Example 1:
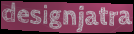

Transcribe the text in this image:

designjatra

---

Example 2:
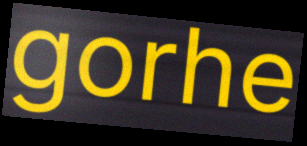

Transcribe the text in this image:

gorhe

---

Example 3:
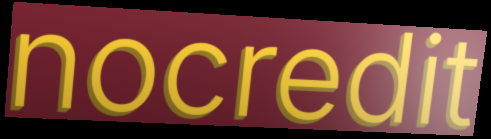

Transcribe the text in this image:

nocredit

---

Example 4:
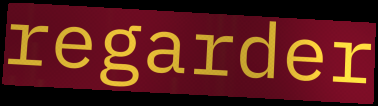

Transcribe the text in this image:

regarder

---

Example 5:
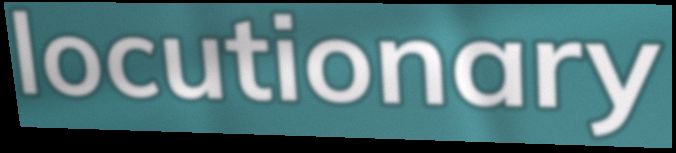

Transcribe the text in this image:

locutionary